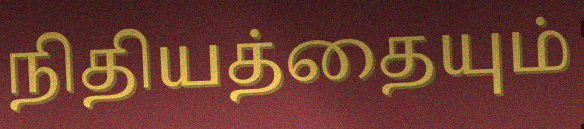
நிதியத்தையும்